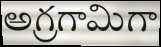
అగ్రగామిగా